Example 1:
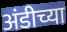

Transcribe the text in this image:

अंडीच्या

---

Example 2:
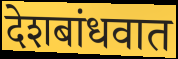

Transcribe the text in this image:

देशबांधवात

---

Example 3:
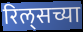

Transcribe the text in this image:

रिल्सच्या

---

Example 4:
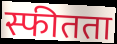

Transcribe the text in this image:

स्फीतता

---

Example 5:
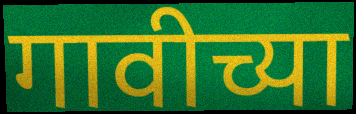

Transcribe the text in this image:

गावीच्या